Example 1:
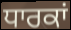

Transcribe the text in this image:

ਧਾਰਕਾਂ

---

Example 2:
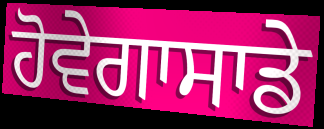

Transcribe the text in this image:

ਹੋਵੇਗਾਸਾਡੇ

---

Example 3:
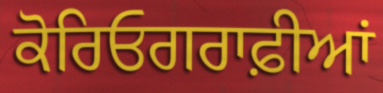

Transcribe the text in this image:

ਕੋਰਿਓਗਰਾਫ਼ੀਆਂ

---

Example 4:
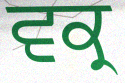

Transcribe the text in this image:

ਵਕ੍ਰ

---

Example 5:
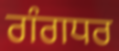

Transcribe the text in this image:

ਗੰਗਧਰ